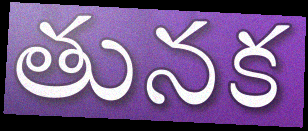
తునక